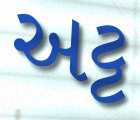
અટ્ટ